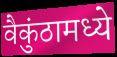
वैकुंठामध्ये